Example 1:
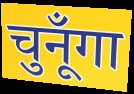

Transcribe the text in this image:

चुनूँगा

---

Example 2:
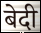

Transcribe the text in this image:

बेदी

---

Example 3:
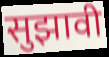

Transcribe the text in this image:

सुझावी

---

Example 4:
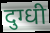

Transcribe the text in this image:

दुग्धी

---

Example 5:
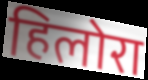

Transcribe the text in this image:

हिलोरा